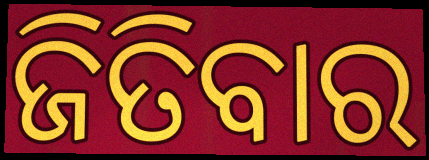
ଜିତିବାର